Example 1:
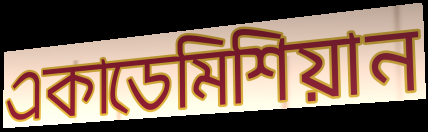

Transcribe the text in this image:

একাডেমিশিয়ান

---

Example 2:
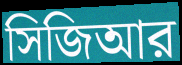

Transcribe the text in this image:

সিজিআর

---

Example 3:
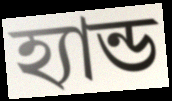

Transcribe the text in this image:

হ্যান্ড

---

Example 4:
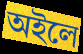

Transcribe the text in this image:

অইলে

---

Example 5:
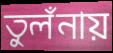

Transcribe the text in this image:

তুলঁনায়